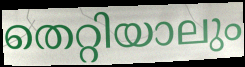
തെറ്റിയാലും